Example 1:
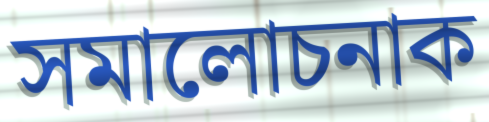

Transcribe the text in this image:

সমালোচনাক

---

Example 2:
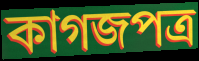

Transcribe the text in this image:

কাগজপত্ৰ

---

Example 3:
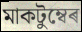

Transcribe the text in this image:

মাকটুম্বেৰ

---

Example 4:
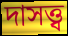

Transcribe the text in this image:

দাসত্ত্ব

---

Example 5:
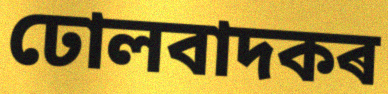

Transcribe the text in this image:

ঢোলবাদকৰ